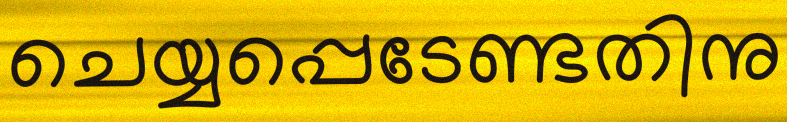
ചെയ്യപ്പെടേണ്ടതിനു